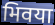
भिवया